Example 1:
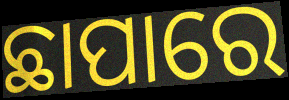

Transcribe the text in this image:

ଛାପାରେ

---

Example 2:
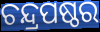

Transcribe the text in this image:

ଚନ୍ଦ୍ରପଷ୍ଠର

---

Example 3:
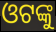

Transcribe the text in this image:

ଓଟଙ୍କୁ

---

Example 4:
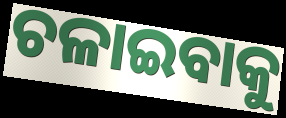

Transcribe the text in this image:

ଚଳାଇବାକୁ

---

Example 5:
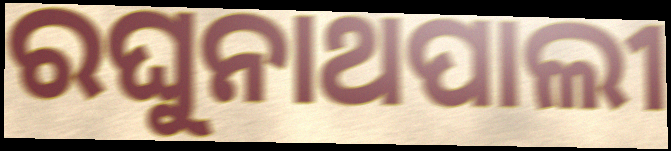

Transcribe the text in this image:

ରଘୁନାଥପାଲୀ